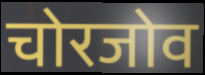
चोरजोव